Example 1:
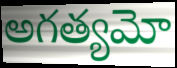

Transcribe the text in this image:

అగత్యమో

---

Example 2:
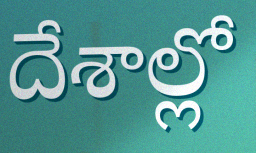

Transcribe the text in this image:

దేశాల్లో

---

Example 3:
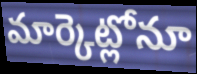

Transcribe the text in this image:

మార్కెట్లోనూ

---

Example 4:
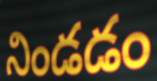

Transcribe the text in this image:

నిండడం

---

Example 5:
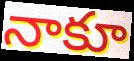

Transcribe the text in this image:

నాకూ